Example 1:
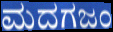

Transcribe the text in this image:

ಮದಗಜಂ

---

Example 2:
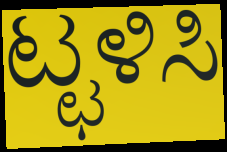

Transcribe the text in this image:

ಟ್ಟಳಿಸಿ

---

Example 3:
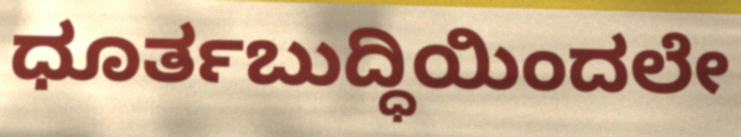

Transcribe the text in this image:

ಧೂರ್ತಬುದ್ಧಿಯಿಂದಲೇ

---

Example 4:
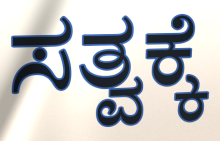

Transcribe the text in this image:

ಸತ್ವಕ್ಕೆ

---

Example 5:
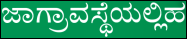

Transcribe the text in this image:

ಜಾಗ್ರಾವಸ್ಥೆಯಲ್ಲಿಹ